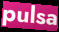
pulsa